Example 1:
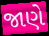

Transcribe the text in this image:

જાણે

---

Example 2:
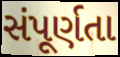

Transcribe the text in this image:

સંપૂર્ણતા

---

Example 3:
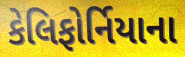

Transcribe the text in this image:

કેલિફોર્નિયાના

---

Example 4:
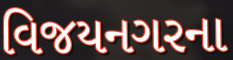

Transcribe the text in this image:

વિજયનગરના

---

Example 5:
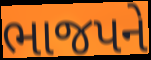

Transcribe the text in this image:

ભાજપને